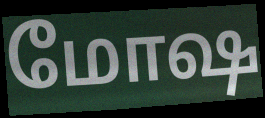
மோஷ